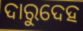
ଦାରୁଦେହ